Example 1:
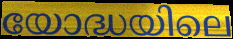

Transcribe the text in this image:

യോദ്ധയിലെ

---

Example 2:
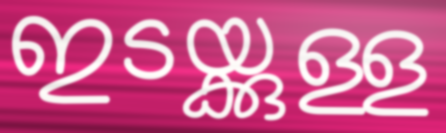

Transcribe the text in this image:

ഇടയ്ക്കുള്ള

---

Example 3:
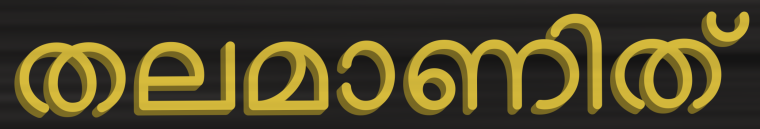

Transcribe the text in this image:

തലമാണിത്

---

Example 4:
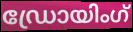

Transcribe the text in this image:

ഡ്രോയിംഗ്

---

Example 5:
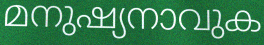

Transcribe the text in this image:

മനുഷ്യനാവുക